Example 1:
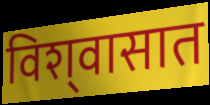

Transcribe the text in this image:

विश्वासात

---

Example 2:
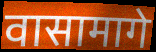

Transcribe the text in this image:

वासामागे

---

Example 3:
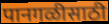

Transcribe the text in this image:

पानगळीसाठी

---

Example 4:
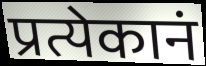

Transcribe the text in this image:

प्रत्येकानं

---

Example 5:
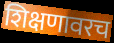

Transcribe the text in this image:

शिक्षणावरच